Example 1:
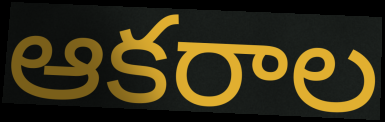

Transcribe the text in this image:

ఆకరాల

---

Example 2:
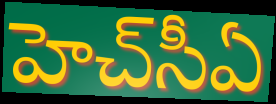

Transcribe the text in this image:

హెచ్‌సీఏ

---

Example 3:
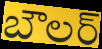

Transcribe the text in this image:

బౌలర్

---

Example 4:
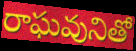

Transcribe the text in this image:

రాఘవునితో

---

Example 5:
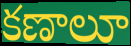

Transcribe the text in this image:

కణాలూ